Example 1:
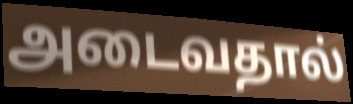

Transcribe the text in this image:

அடைவதால்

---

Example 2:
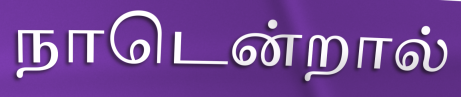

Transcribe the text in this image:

நாடென்றால்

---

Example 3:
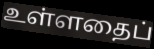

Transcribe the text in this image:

உள்ளதைப்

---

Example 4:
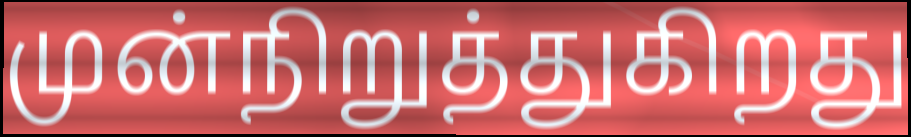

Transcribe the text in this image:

முன்நிறுத்துகிறது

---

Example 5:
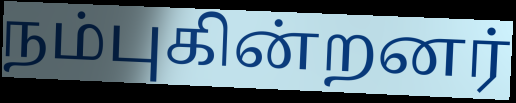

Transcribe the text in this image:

நம்புகின்றனர்